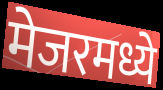
मेजरमध्ये